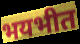
भयभीत